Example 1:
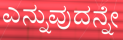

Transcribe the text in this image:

ಎನ್ನುವುದನ್ನೇ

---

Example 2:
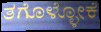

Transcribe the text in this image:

ತಗೊಳ್ಳೋಕೆ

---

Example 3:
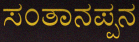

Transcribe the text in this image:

ಸಂತಾನಪ್ಪನ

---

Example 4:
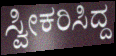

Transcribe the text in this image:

ಸ್ವೀಕರಿಸಿದ್ದ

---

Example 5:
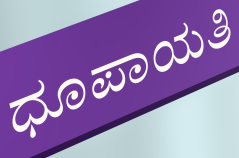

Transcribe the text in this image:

ಧೂಪಾಯತಿ